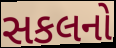
સકલનો